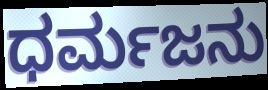
ಧರ್ಮಜನು